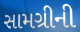
સામગ્રીની